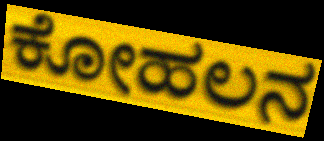
ಕೋಹಲನ